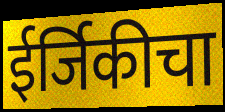
ईर्जिकीचा